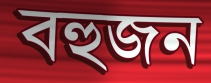
বহুজন